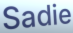
Sadie